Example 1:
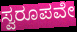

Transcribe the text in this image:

ಸ್ವರೂಪವೇ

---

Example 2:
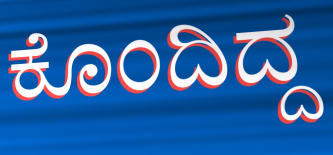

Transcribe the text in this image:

ಕೊಂದಿದ್ದ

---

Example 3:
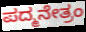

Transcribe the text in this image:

ಪದ್ಮನೇತ್ರಂ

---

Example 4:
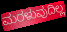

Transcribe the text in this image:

ಮರಳುವುದಿಲ್ಲ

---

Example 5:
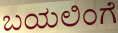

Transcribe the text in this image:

ಬಯಲಿಂಗೆ